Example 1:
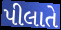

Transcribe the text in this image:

પીલાતે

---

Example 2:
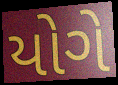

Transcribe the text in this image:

યોગે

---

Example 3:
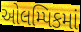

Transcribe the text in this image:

ઓલમ્પિકમાં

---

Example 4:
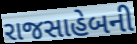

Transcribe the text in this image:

રાજસાહેબની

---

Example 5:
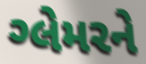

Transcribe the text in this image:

ગ્લેમરને